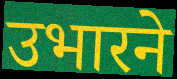
उभारने